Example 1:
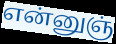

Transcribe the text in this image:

என்னுஞ்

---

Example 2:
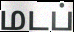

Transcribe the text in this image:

மடப்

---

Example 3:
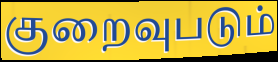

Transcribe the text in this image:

குறைவுபடும்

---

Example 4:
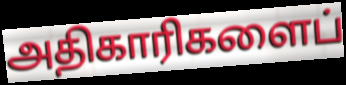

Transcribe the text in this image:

அதிகாரிகளைப்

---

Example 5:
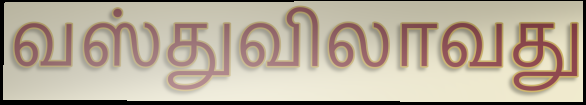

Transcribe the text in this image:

வஸ்துவிலாவது